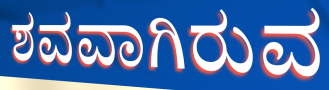
ಶವವಾಗಿರುವ